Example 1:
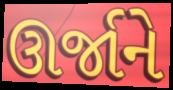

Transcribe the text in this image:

ઊર્જાને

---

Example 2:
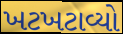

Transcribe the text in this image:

ખટખટાવ્યો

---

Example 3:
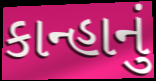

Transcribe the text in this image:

કાન્હાનું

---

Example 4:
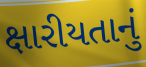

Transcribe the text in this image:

ક્ષારીયતાનું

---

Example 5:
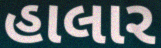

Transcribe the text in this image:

હાલાર